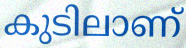
കുടിലാണ്